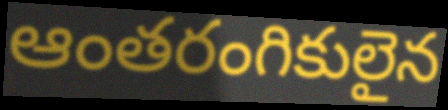
ఆంతరంగికులైన